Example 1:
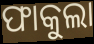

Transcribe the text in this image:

ଫାକୁଲା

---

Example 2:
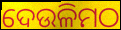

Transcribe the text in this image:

ଦେଉଳିମଠ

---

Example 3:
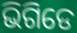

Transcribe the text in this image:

ଭିଗିଡେ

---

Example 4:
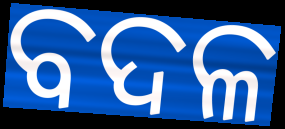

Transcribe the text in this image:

ବଦଳ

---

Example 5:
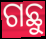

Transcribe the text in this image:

ଗଛୁ